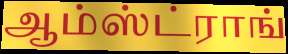
ஆம்ஸ்ட்ராங்